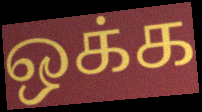
ஒக்க